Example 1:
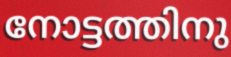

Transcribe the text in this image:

നോട്ടത്തിനു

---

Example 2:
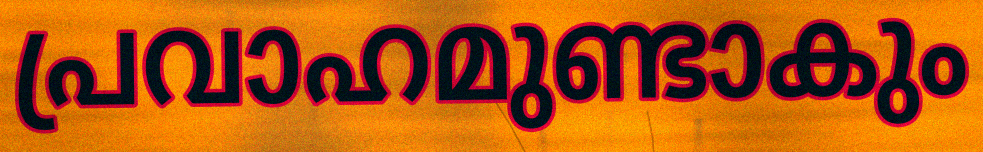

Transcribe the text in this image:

പ്രവാഹമുണ്ടാകും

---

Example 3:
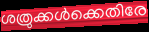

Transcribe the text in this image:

ശത്രുക്കൾക്കെതിരേ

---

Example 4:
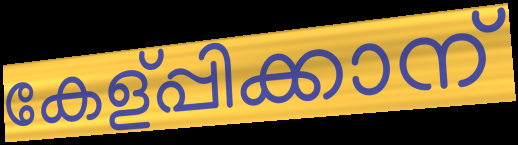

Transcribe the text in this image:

കേള്പ്പിക്കാന്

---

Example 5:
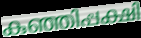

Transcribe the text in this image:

കുഞ്ഞിപ്പക്ഷി